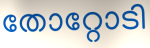
തോറ്റോടി